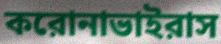
করোনাভাইরাস